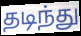
தடிந்து